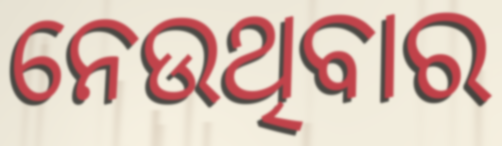
ନେଉଥିବାର